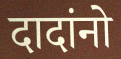
दादांनो